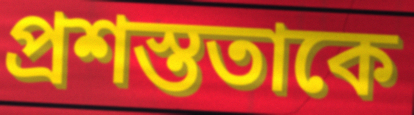
প্রশস্ততাকে